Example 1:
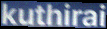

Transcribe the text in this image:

kuthirai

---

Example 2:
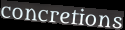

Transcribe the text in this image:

concretions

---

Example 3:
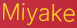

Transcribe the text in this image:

Miyake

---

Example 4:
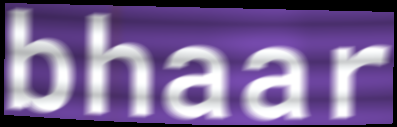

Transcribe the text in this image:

bhaar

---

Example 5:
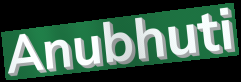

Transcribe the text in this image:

Anubhuti